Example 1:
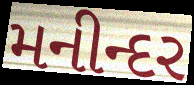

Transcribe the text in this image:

મનીન્દર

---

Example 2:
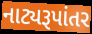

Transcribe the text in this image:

નાટ્યરૂપાંતર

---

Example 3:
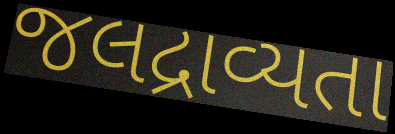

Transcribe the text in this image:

જલદ્રાવ્યતા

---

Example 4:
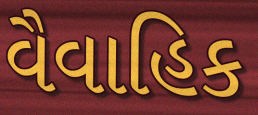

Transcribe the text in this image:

વૈવાહિક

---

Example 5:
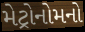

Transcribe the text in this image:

મેટ્રોનોમનો